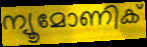
ന്യൂമോണിക്